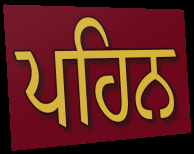
ਪਹਿਨ